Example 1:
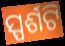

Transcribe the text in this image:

ସ୍ପର୍ଶଟି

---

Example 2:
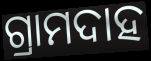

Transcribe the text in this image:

ଗ୍ରାମଦାହ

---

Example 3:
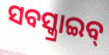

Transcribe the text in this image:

ସବସ୍କ୍ରାଇବ୍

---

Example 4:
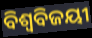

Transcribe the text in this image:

ବିଶ୍ବବିଜୟୀ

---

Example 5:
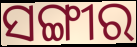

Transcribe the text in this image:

ସଙ୍ଗୀର